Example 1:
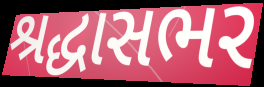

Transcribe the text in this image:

શ્રદ્ધાસભર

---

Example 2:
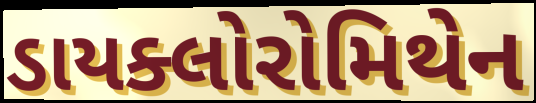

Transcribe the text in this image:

ડાયક્લોરોમિથેન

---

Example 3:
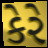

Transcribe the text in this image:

કેરે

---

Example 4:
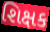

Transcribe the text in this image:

શિક્ષક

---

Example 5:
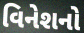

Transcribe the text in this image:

વિનેશનો